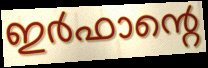
ഇർഫാന്റെ